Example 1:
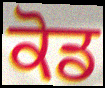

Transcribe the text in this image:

ਕੋਡ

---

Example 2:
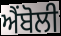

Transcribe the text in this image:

ਐਂਬੋਲੀ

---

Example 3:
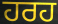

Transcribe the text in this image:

ਹਰਹ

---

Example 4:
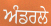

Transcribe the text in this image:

ਅੰਡਰਲੇ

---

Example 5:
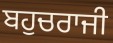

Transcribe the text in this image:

ਬਹੁਚਰਾਜੀ